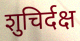
शुचिर्दक्ष